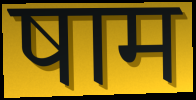
षाम